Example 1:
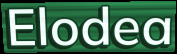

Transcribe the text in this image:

Elodea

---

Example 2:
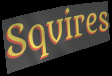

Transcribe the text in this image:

Squires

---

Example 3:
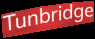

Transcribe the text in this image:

Tunbridge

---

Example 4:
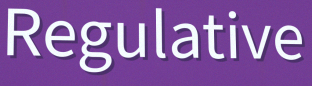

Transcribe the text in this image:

Regulative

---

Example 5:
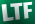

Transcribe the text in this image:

LTF